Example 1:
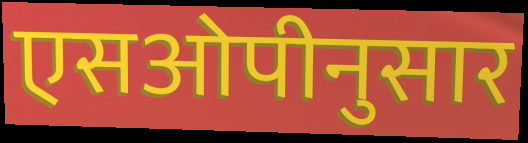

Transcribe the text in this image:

एसओपीनुसार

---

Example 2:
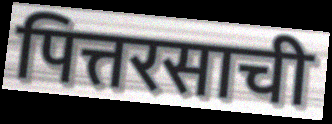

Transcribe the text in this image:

पित्तरसाची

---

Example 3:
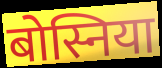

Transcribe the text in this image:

बोस्निया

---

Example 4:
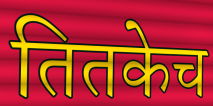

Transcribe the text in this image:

तितकेच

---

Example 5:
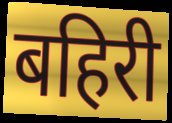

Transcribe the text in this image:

बहिरी